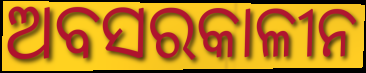
ଅବସରକାଳୀନ